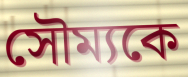
সৌম্যকে